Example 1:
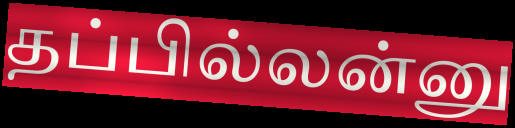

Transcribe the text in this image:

தப்பில்லன்னு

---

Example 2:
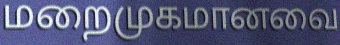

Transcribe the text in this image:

மறைமுகமானவை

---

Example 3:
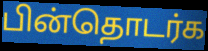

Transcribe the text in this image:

பின்தொடர்க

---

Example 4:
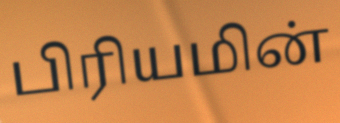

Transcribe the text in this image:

பிரியமின்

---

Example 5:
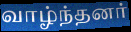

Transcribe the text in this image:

வாழ்ந்தனர்